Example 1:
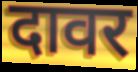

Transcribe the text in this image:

दावर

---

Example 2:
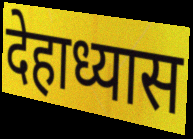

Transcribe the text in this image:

देहाध्यास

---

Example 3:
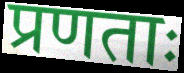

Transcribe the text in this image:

प्रणताः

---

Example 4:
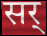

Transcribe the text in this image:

सर्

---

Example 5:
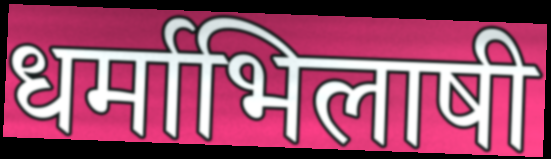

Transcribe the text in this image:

धर्माभिलाषी